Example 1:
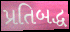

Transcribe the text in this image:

પ્રતિબદ્ધ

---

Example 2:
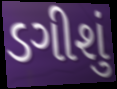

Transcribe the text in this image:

ડગીશું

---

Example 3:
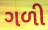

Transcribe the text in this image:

ગળી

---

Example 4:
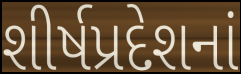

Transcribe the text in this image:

શીર્ષપ્રદેશનાં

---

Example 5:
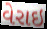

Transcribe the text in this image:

વેરાઇ